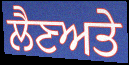
ਲੈਣਅਤੇ